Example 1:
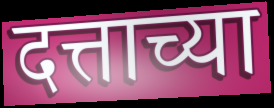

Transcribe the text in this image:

दत्ताच्या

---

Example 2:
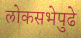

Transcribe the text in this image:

लोकसभेपुढे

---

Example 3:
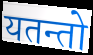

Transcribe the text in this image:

यतन्तो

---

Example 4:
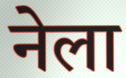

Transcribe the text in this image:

नेला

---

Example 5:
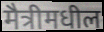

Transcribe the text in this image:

मैत्रीमधील